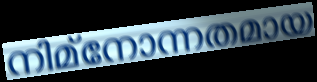
നിമ്നോന്നതമായ